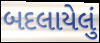
બદલાયેલું